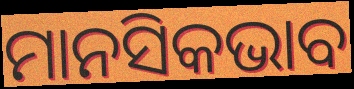
ମାନସିକଭାବ